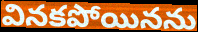
వినకపోయినను